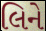
લિને